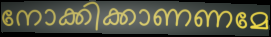
നോക്കിക്കാണണമേ